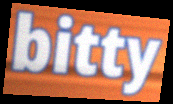
bitty